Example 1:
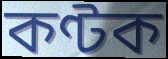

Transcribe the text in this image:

কণ্টক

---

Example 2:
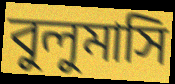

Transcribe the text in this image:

বুলুমাসি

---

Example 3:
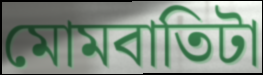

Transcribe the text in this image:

মোমবাতিটা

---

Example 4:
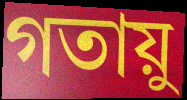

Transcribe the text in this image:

গতায়ু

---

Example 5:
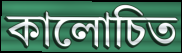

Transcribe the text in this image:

কালোচিত